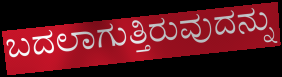
ಬದಲಾಗುತ್ತಿರುವುದನ್ನು